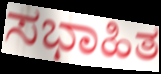
ಸಭಾಹಿತ